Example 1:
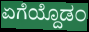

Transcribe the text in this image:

ಏಗೆಯ್ದೊಡಂ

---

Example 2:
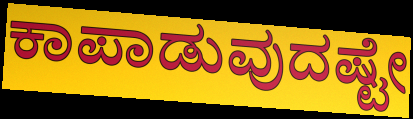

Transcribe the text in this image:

ಕಾಪಾಡುವುದಷ್ಟೇ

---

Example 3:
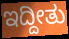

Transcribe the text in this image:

ಇದ್ದೀತು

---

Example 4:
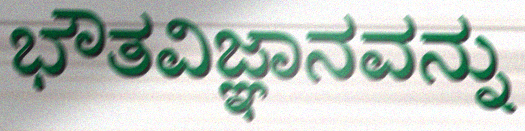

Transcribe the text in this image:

ಭೌತವಿಜ್ಞಾನವನ್ನು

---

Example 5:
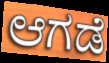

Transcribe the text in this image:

ಆಗಡೆ